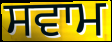
ਸਵਾਮ